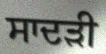
ਸਾਦੜੀ